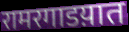
रामरगाडय़ात